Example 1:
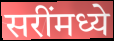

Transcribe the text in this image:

सरींमध्ये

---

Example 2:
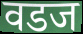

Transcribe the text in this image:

वडज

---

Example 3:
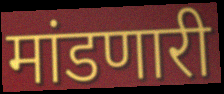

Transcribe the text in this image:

मांडणारी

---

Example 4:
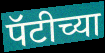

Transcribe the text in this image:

पॅटीच्या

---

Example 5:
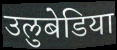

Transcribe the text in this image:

उलुबेडिया